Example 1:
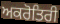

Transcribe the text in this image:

ਅਕਰੋਤਿਰੀ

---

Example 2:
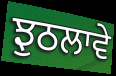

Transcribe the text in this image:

ਝੁਠਲਾਵੇ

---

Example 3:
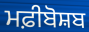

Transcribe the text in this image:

ਮਫ਼ੀਬੋਸ਼ਬ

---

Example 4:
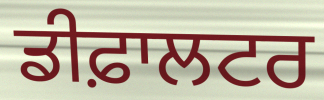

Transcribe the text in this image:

ਡੀਫ਼ਾਲਟਰ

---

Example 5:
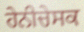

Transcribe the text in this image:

ਹੇਨੀਚੇਸਕ